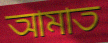
আমাত